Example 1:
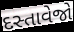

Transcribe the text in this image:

દસ્તાવેજો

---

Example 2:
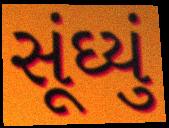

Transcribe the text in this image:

સૂંઘ્યું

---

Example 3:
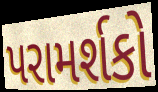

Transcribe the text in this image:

પરામર્શકો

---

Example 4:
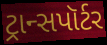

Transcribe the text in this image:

ટ્રાન્સપૉર્ટર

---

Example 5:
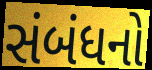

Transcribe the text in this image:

સંબંધનો